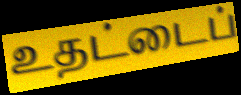
உதட்டைப்